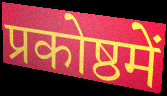
प्रकोष्ठमें